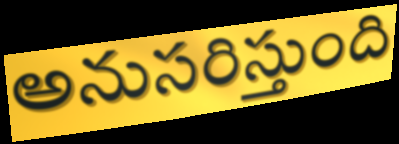
అనుసరిస్తుంది